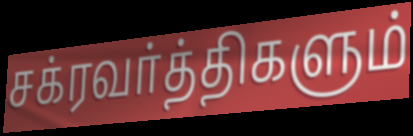
சக்ரவர்த்திகளும்